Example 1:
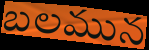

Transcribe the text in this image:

బలమున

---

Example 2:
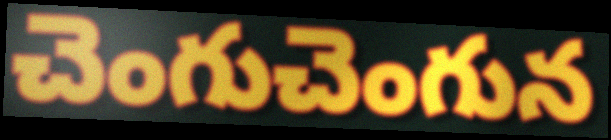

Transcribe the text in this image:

చెంగుచెంగున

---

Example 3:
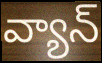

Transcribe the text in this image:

వ్యాన్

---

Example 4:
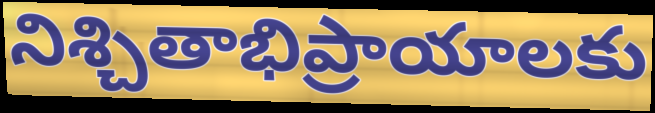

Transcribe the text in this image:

నిశ్చితాభిప్రాయాలకు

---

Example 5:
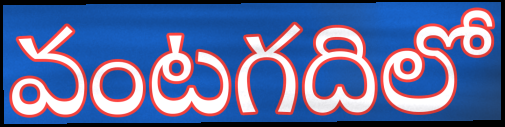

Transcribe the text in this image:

వంటగదిలో